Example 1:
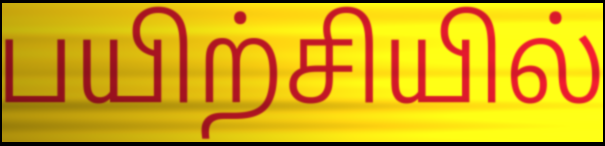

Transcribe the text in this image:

பயிற்சியில்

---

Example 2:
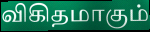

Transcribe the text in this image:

விகிதமாகும்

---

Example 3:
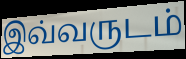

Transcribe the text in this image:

இவ்வருடம்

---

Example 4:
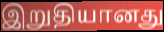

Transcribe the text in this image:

இறுதியானது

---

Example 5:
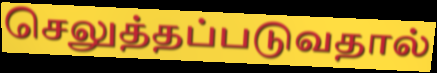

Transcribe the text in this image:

செலுத்தப்படுவதால்